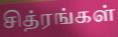
சித்ரங்கள்